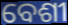
ବେଶୀ